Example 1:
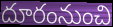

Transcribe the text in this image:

దూరంనుంచి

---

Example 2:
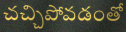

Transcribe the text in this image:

చచ్చిపోవడంతో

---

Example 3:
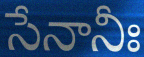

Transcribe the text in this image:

సేనానీః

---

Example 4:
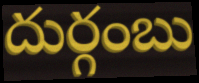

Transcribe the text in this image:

దుర్గంబు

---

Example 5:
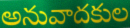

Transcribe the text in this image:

అనువాదకుల